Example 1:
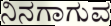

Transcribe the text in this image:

ನಿನಗಾಗುವ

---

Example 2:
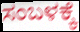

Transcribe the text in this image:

ಸಂಬಳಕ್ಕೆ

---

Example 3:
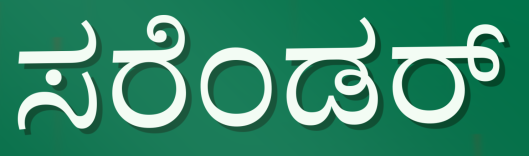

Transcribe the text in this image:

ಸರೆಂಡರ್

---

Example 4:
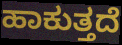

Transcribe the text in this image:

ಹಾಕುತ್ತದೆ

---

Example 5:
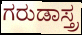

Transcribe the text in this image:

ಗರುಡಾಸ್ತ್ರ